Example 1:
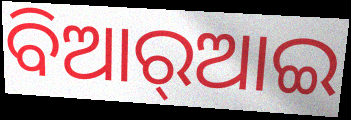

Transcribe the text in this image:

ବିଆର୍‌ଆଇ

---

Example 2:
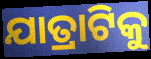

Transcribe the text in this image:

ଯାତ୍ରାଟିକୁ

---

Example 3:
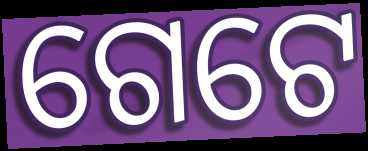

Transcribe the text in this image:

ଗେଟେ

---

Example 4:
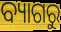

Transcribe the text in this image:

ବ୍ୟାଗରୁ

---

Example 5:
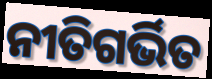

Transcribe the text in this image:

ନୀତିଗର୍ଭିତ